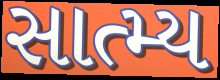
સાત્મ્ય